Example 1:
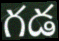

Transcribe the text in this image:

గడ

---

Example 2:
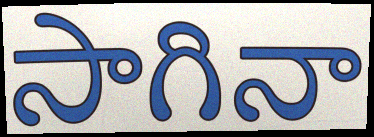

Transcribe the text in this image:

సాగినా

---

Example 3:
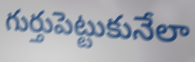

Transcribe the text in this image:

గుర్తుపెట్టుకునేలా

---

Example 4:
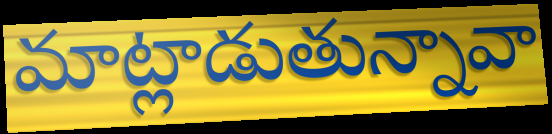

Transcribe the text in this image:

మాట్లాడుతున్నావా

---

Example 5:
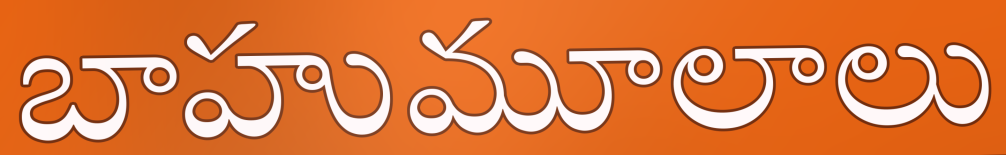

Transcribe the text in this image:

బాహుమూలాలు